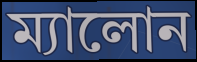
ম্যালোন